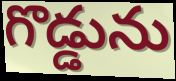
గొడ్డును